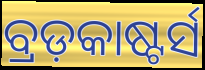
ବ୍ରଡ଼କାଷ୍ଟର୍ସ